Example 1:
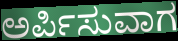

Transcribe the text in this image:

ಅರ್ಪಿಸುವಾಗ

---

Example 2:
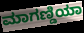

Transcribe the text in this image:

ಮಾಗಣ್ಡಿಯಾ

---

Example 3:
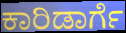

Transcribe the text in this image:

ಕಾರಿಡಾರ್ಗೆ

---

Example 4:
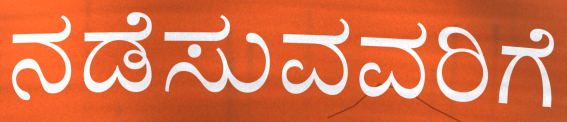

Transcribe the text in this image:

ನಡೆಸುವವರಿಗೆ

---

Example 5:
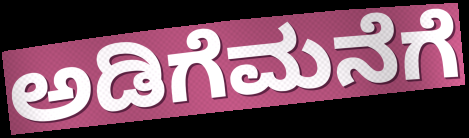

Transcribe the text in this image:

ಅಡಿಗೆಮನೆಗೆ